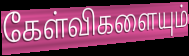
கேள்விகளையும்